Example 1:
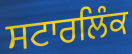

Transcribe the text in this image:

ਸਟਾਰਲਿੰਕ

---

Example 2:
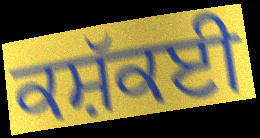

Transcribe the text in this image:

ਕਸ਼ੱਕਈ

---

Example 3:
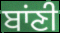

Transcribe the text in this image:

ਬਾਂਣੀ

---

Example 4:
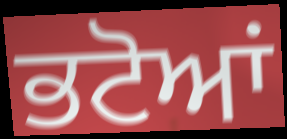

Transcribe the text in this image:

ਭਟੋਆਂ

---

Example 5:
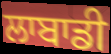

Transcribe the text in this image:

ਲਾਬਾਡੀ